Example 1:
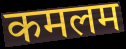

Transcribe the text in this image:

कमलम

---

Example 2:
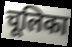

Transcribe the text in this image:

चूलिका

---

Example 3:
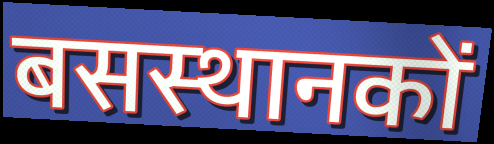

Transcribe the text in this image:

बसस्थानकों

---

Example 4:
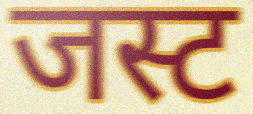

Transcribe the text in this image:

जस्ट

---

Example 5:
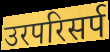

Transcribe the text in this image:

उरपरिसर्प